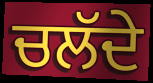
ਚਲੱਦੇ